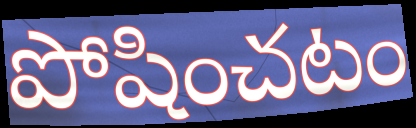
పోషించటం